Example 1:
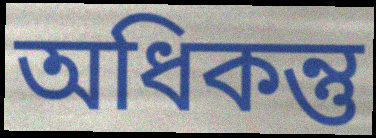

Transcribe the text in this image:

অধিকন্তু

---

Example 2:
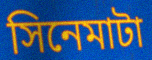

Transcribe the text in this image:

সিনেমাটা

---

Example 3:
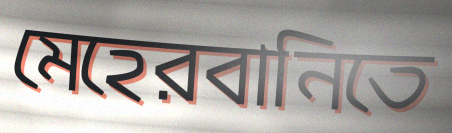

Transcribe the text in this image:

মেহেরবানিতে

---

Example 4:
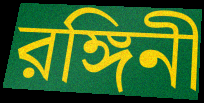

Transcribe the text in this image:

রঙ্গিনী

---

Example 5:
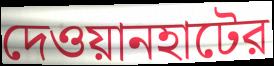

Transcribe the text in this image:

দেওয়ানহাটের